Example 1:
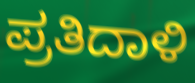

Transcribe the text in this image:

ಪ್ರತಿದಾಳಿ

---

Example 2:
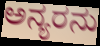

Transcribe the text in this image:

ಅನ್ಯರನು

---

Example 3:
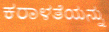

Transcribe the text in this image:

ಕರಾಳತೆಯನ್ನು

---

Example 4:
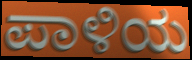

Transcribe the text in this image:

ಪಾಳಿಯ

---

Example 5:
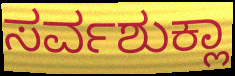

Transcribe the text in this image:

ಸರ್ವಶುಕ್ಲಾ